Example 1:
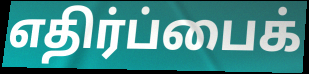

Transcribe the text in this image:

எதிர்ப்பைக்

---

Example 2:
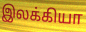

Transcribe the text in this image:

இலக்கியா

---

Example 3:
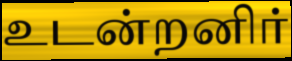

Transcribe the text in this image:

உடன்றனிர்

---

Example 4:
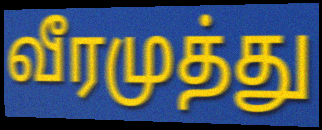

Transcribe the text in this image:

வீரமுத்து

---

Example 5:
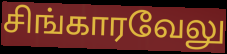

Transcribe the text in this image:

சிங்காரவேலு